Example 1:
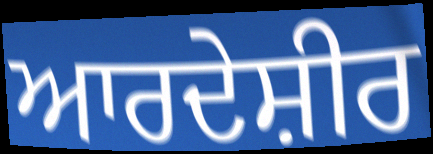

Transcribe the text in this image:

ਆਰਦੇਸ਼ੀਰ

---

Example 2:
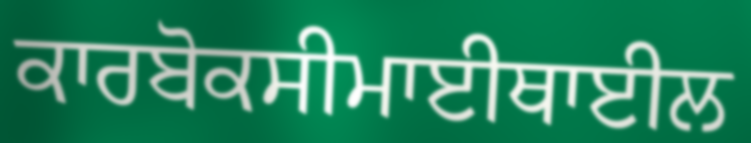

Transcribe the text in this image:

ਕਾਰਬੋਕਸੀਮਾਈਥਾਈਲ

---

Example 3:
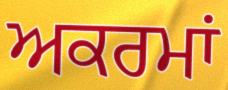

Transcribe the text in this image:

ਅਕਰਮਾਂ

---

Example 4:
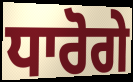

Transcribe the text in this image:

ਧਾਰੋਗੇ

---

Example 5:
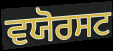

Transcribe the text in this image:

ਵਯੋਰਸਟ